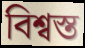
বিশ্বস্ত